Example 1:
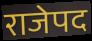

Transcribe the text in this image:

राजेपद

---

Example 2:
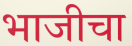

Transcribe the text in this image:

भाजीचा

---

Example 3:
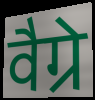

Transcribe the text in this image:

वैग्रे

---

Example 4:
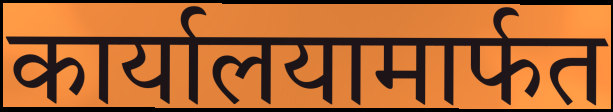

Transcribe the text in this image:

कार्यालयामार्फत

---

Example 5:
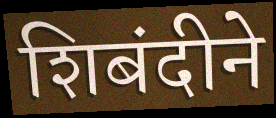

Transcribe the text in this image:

शिबंदीने